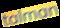
talman